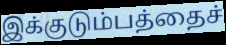
இக்குடும்பத்தைச்